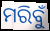
ମରିବୁଁ